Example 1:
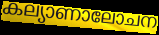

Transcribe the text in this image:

കല്യാണാലോചന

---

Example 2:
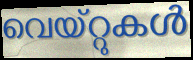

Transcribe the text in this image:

വെയ്റ്റുകൾ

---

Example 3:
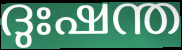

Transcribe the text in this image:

ദുഃഷന്ത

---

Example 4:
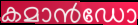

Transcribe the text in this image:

കമാൻഡോ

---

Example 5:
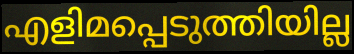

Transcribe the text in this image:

എളിമപ്പെടുത്തിയില്ല